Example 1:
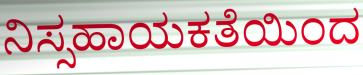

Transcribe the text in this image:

ನಿಸ್ಸಹಾಯಕತೆಯಿಂದ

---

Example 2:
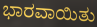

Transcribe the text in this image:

ಭಾರವಾಯಿತು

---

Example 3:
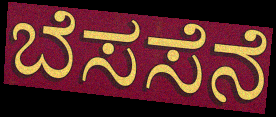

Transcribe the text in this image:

ಬೆಸಸೆನೆ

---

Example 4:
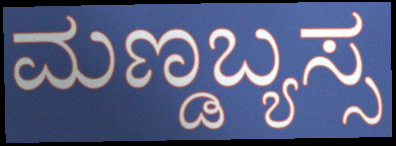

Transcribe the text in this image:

ಮಣ್ಡಬ್ಯಸ್ಸ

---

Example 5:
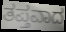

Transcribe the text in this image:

ತಪ್ತವಾದ